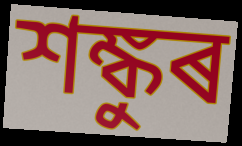
শঙ্কুৰ